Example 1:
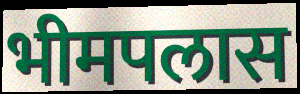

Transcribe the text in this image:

भीमपलास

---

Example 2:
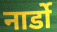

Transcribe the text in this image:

नार्डो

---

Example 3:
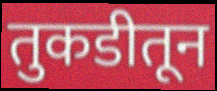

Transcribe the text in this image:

तुकडीतून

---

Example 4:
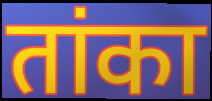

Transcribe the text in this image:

तांका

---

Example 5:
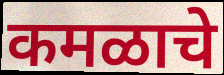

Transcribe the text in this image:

कमळाचे